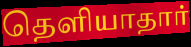
தெளியாதார்